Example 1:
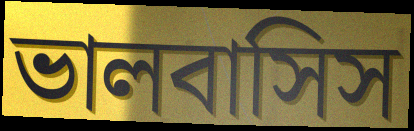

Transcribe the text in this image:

ভালবাসিস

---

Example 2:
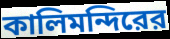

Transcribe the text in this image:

কালিমন্দিরের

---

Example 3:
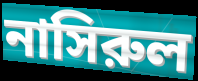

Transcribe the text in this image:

নাসিরুল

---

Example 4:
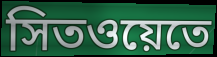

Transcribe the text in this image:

সিতওয়েতে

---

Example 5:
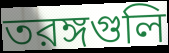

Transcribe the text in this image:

তরঙ্গগুলি